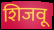
शिजवू